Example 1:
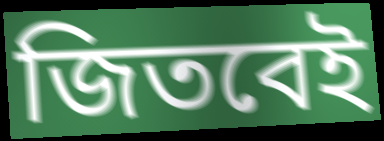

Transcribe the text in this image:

জিতবেই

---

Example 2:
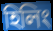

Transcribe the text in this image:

হিলিং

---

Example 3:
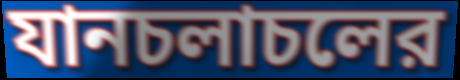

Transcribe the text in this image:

যানচলাচলের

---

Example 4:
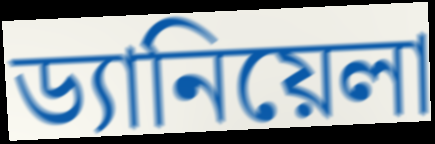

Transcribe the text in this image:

ড্যানিয়েলা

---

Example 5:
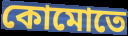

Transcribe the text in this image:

কোমোতে